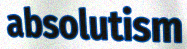
absolutism